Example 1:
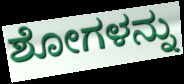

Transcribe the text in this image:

ಶೋಗಳನ್ನು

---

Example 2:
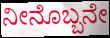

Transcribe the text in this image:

ನೀನೊಬ್ಬನೇ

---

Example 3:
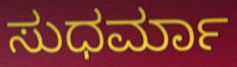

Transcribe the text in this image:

ಸುಧರ್ಮಾ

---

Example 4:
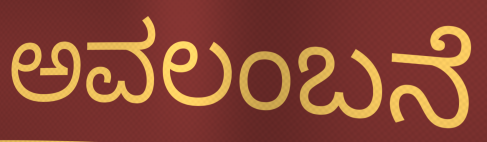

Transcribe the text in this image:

ಅವಲಂಬನೆ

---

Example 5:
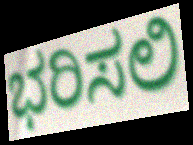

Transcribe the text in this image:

ಭರಿಸಲಿ